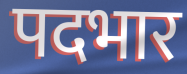
पदभार